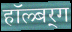
हॉल्बर्ग